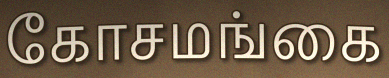
கோசமங்கை